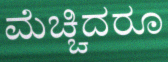
ಮೆಚ್ಚಿದರೂ